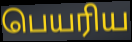
பெயரிய